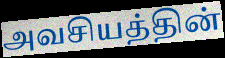
அவசியத்தின்